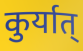
कुर्यात्